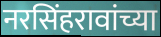
नरसिंहरावांच्या